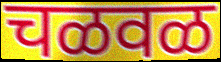
चळवळ